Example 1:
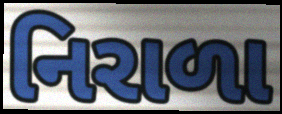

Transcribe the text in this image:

નિરાળા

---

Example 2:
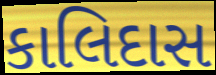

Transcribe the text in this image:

કાલિદાસ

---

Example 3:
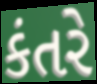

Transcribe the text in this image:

કંતરે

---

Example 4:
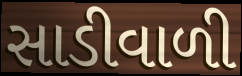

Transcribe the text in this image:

સાડીવાળી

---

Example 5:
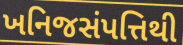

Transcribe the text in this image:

ખનિજસંપત્તિથી